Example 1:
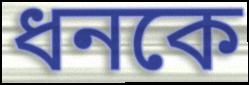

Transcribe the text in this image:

ধনকে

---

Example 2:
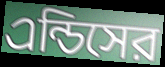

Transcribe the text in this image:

এন্ডিসের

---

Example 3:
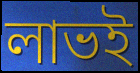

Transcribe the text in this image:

লাভই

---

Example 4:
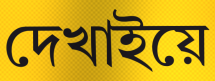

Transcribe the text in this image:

দেখাইয়ে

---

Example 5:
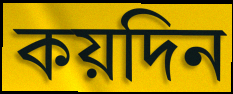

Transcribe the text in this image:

কয়দিন